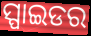
ସ୍ପାଇଡର